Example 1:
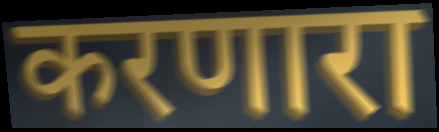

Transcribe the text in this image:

करणारा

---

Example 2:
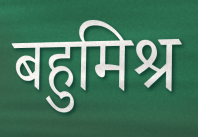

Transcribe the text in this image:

बहुमिश्र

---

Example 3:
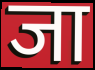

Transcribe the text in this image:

जा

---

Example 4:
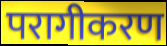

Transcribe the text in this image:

परागीकरण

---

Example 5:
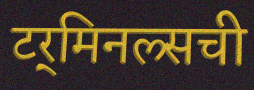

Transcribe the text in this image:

टर्मिनल्सची